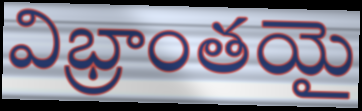
విభ్రాంతయై